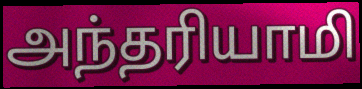
அந்தரியாமி